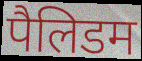
पैलिडम